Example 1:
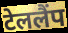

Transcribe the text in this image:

टेललैंप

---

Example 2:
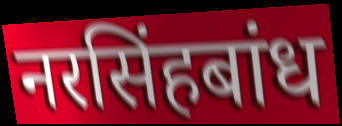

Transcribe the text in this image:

नरसिंहबांध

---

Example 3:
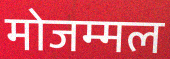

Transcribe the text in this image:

मोजम्मल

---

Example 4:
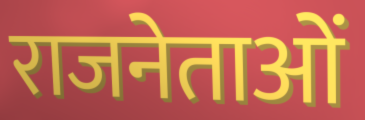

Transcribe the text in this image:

राजनेताओं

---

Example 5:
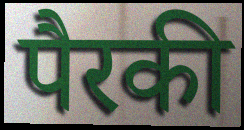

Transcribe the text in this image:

पैरकी